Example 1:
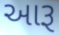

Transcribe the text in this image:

આરૂ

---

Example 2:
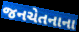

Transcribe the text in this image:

જનચેતનાના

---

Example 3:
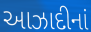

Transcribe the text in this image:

આઝાદીનાં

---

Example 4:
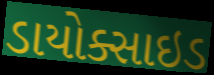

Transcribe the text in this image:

ડાયોક્સાઇડ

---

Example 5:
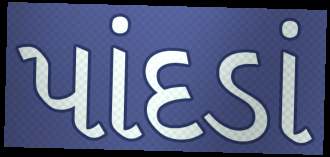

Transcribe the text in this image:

પાંદડાં